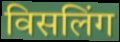
विसलिंग